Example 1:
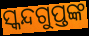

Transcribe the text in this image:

ସ୍କନ୍ଦଗୁପ୍ତଙ୍କ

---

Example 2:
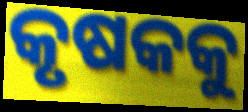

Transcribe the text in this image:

କୃଷକକୁ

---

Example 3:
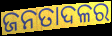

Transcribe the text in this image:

ଜନତାଦଳର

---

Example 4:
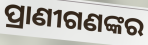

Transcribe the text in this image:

ପ୍ରାଣୀଗଣଙ୍କର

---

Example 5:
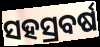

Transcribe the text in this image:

ସହସ୍ରବର୍ଷ